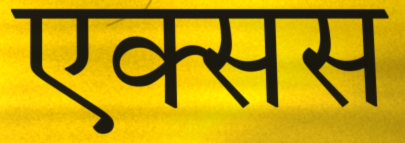
एक्सस